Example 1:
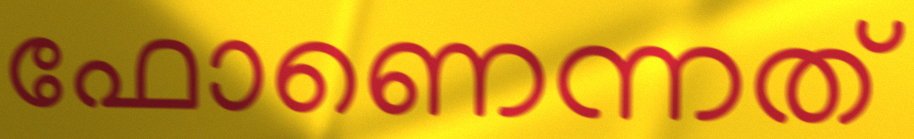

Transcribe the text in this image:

ഫോണെന്നത്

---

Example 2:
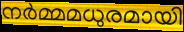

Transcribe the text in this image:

നർമ്മമധുരമായി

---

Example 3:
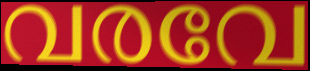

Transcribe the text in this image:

വരവേ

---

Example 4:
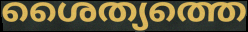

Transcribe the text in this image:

ശൈത്യത്തെ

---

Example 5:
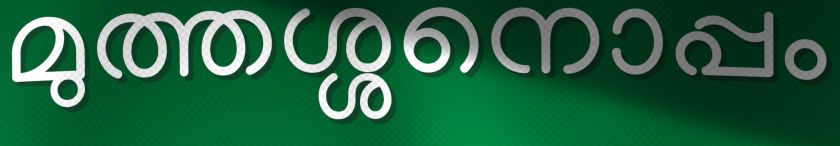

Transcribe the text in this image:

മുത്തശ്ശനൊപ്പം